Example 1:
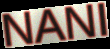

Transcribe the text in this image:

NANI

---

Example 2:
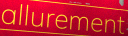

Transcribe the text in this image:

allurement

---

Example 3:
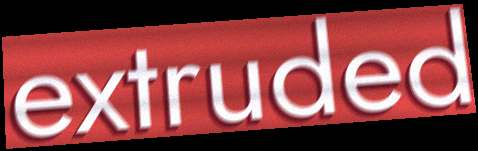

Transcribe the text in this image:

extruded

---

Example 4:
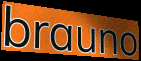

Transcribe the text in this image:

brauno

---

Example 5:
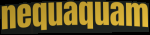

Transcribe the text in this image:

nequaquam